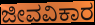
ಜೀವವಿಕಾರ